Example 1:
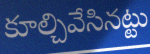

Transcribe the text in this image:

కూల్చివేసినట్టు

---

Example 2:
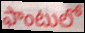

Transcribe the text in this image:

ఫాంటులో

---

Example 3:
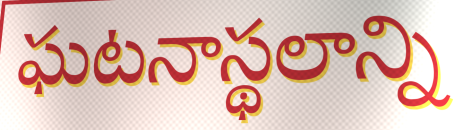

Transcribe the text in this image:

ఘటనాస్థలాన్ని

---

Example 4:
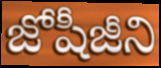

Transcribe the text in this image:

జోషీజీని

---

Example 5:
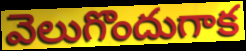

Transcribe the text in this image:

వెలుగొందుగాక